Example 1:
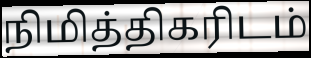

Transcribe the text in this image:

நிமித்திகரிடம்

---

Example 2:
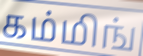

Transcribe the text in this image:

கம்மிங்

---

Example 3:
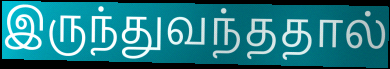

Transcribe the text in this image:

இருந்துவந்ததால்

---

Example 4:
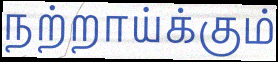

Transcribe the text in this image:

நற்றாய்க்கும்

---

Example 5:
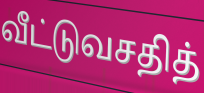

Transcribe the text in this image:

வீட்டுவசதித்